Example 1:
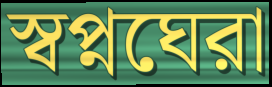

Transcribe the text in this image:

স্বপ্নঘেরা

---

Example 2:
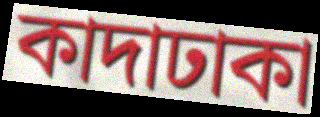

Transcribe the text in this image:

কাদাঢাকা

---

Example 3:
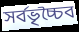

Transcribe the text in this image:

সর্বভৃচ্চৈব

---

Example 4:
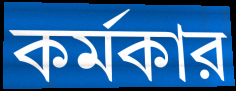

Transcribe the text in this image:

কর্মকার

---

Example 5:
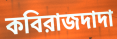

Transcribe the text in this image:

কবিরাজদাদা